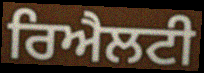
ਰਿਐਲਟੀ